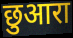
छुआरा